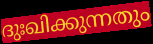
ദുഃഖിക്കുന്നതും